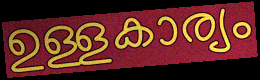
ഉള്ളകാര്യം